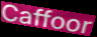
Caffoor